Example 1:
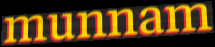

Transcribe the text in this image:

munnam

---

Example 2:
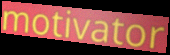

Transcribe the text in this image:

motivator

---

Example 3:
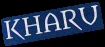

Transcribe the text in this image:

KHARU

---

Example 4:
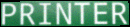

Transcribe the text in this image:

PRINTER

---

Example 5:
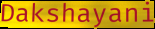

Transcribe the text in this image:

Dakshayani